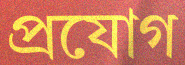
প্ৰযোগ